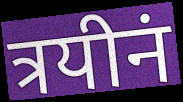
त्रयीनं